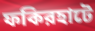
ফকিরহাটে